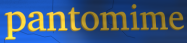
pantomime